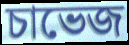
চাভেজ